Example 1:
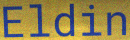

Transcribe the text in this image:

Eldin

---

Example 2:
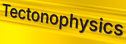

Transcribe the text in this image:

Tectonophysics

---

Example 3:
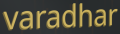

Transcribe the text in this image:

varadhar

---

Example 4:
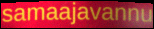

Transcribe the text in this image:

samaajavannu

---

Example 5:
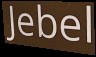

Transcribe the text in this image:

Jebel